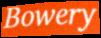
Bowery